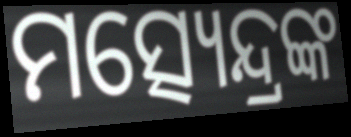
ମତ୍ସ୍ୟେନ୍ଦ୍ରଙ୍କ